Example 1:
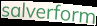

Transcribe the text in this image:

salverform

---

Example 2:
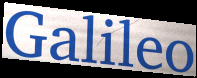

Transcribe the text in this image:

Galileo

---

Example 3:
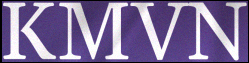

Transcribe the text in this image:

KMVN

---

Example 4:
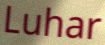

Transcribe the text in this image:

Luhar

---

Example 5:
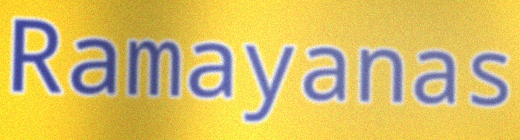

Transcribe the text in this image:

Ramayanas